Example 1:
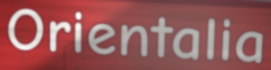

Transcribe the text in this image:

Orientalia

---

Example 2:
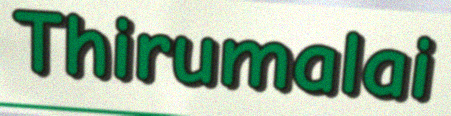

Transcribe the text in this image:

Thirumalai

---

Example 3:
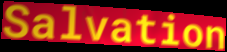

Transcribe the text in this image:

Salvation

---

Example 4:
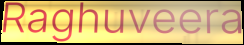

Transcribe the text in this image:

Raghuveera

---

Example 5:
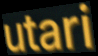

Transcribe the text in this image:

utari